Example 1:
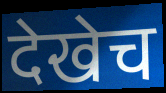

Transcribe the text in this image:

देखेच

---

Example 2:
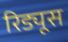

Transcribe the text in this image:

रिड्यूस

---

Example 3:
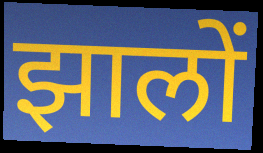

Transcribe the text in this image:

झालों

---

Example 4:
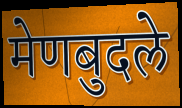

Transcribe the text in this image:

मेणबुदले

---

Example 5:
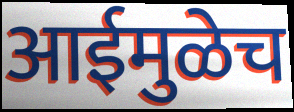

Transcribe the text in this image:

आईमुळेच